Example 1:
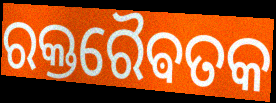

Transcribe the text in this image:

ରକ୍ତରୈଵତକ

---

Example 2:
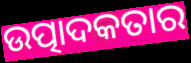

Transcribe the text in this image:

ଉତ୍ପାଦକତାର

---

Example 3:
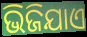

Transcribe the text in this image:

ଭିଜିଯାଏ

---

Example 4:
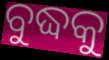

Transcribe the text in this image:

ବୁଦ୍ଧକୁ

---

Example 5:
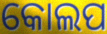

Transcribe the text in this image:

କୋଲପ